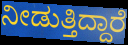
ನೀಡುತ್ತಿದ್ದಾರೆ